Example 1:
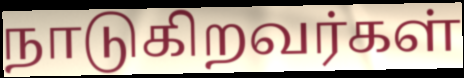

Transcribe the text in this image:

நாடுகிறவர்கள்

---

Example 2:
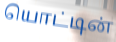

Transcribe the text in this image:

யொட்டின்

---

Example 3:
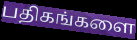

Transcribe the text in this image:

பதிகங்களை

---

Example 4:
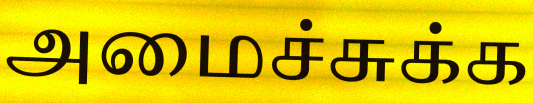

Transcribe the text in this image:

அமைச்சுக்க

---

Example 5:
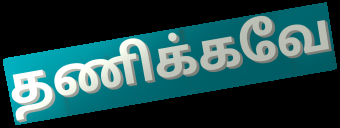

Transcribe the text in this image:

தணிக்கவே